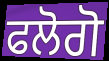
ਫਲੋਗੋ